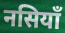
नसियाँ